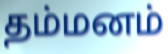
தம்மனம்